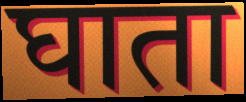
घाता